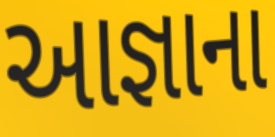
આજ્ઞાના